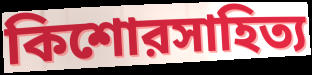
কিশোরসাহিত্য